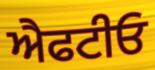
ਐਫਟੀਓ